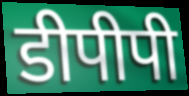
डीपीपी